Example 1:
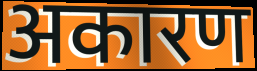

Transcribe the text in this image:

अकारण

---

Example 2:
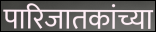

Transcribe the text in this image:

पारिजातकांच्या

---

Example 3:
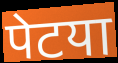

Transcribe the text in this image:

पेटया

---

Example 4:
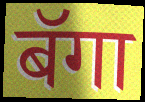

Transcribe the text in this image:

बॅगा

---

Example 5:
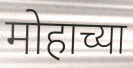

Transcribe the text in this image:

मोहाच्या